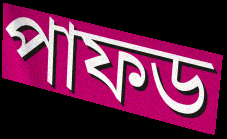
পাফড